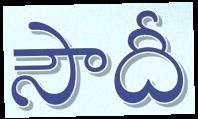
సౌదీ